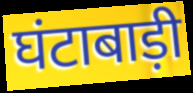
घंटाबाड़ी